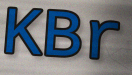
KBr